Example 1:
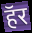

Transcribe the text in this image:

हॅर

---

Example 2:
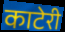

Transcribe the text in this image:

काटेरी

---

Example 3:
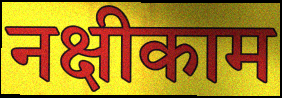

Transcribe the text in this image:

नक्षीकाम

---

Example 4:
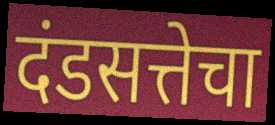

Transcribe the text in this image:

दंडसत्तेचा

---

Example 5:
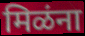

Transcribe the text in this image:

मिळंना